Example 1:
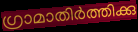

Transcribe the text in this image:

ഗ്രാമാതിർത്തിക്കു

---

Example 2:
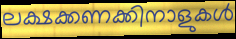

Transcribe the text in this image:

ലക്ഷക്കണക്കിനാളുകൾ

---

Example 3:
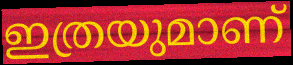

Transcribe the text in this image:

ഇത്രയുമാണ്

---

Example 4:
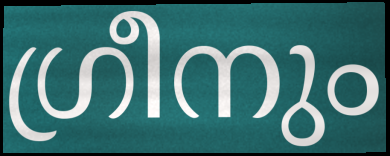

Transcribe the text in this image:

ഗ്രീനും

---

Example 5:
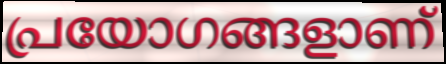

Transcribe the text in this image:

പ്രയോഗങ്ങളാണ്